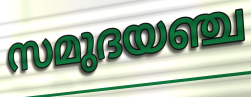
സമുദയഞ്ച